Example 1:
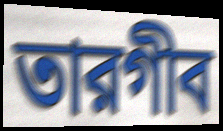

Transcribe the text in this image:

তারগীব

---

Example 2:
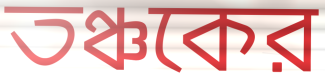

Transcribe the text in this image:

তঞ্চকের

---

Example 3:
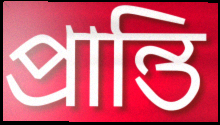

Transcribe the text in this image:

প্রান্তি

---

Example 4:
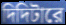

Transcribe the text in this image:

দিদিটারে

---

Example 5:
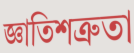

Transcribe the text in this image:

জ্ঞাতিশত্রুতা